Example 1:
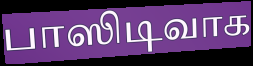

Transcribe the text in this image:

பாஸிடிவாக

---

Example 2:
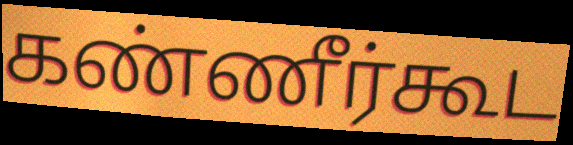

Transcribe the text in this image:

கண்ணீர்கூட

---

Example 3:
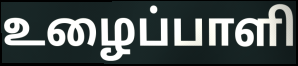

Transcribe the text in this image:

உழைப்பாளி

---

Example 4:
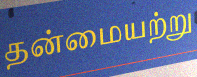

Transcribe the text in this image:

தன்மையற்று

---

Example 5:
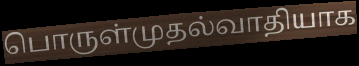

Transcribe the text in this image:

பொருள்முதல்வாதியாக